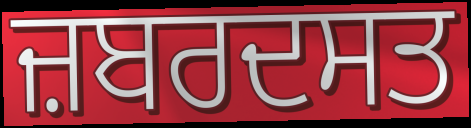
ਜ਼ਬਰਦਸਤ